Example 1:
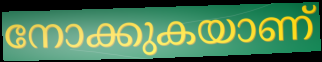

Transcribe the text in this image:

നോക്കുകയാണ്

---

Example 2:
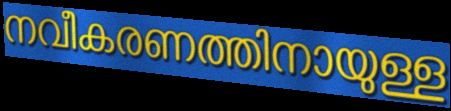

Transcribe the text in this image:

നവീകരണത്തിനായുള്ള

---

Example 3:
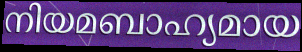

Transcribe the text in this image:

നിയമബാഹ്യമായ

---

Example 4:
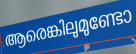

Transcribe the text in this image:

ആരെങ്കിലുമുണ്ടോ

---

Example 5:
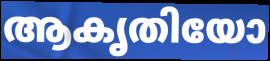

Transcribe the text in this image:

ആകൃതിയോ